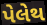
પેલેથ